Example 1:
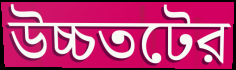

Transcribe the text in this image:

উচ্চতটের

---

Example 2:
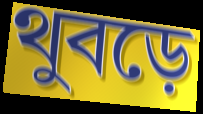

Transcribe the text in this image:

থুবড়ে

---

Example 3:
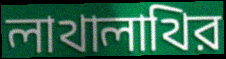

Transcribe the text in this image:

লাথালাথির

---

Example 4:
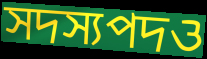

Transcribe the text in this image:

সদস্যপদও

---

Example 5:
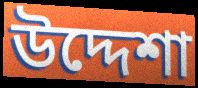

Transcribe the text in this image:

উদ্দেশা